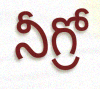
నీగ్రో